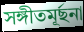
সঙ্গীতমূর্ছনা